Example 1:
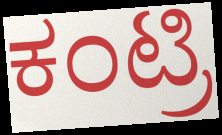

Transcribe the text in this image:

ಕಂಟ್ರಿ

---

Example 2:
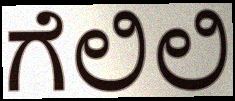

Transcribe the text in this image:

ಗೆಲಿಲಿ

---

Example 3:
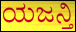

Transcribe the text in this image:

ಯಜನ್ತಿ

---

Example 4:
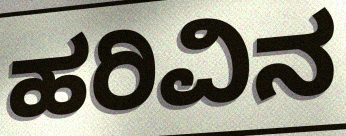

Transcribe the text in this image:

ಹರಿವಿನ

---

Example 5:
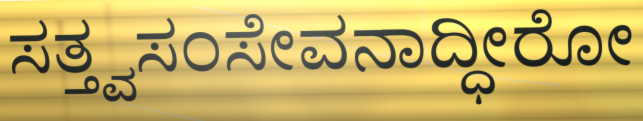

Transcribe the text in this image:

ಸತ್ತ್ವಸಂಸೇವನಾದ್ಧೀರೋ